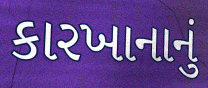
કારખાનાનું